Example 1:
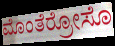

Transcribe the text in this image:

ಮೊಂತೆರ್ರೋಸೊ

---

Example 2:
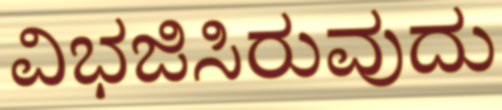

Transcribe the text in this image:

ವಿಭಜಿಸಿರುವುದು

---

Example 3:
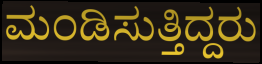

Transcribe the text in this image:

ಮಂಡಿಸುತ್ತಿದ್ದರು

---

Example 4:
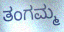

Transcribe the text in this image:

ತಂಗಮ್ಮ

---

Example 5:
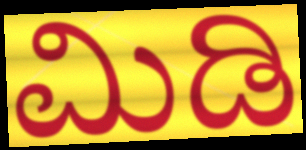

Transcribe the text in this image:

ಮಿಡಿ